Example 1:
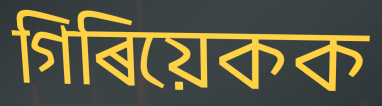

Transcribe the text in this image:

গিৰিয়েকক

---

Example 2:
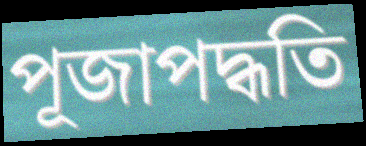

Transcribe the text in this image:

পূজাপদ্ধতি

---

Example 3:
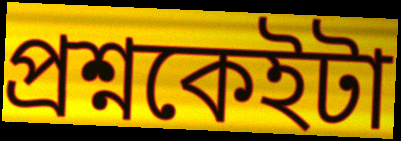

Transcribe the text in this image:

প্ৰশ্নকেইটা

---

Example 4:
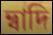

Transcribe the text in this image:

ভ্বাদি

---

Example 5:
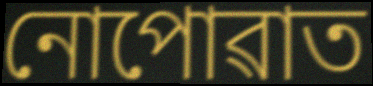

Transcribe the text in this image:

নোপোৱাত